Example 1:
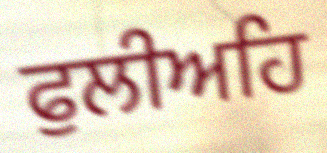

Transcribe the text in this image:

ਫੁਲੀਅਹਿ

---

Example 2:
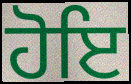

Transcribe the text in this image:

ਹੋਇ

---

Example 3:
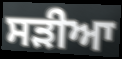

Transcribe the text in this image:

ਸੜੀਆ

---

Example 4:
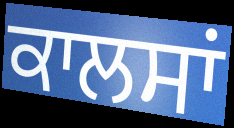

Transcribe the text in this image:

ਕਾਲਸਾਂ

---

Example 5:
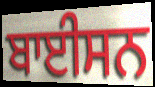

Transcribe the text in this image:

ਬਾਈਸਨ